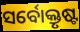
ସର୍ବୋକ୍ତୃଷ୍ଟ